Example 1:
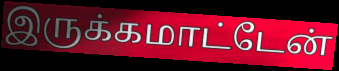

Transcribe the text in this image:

இருக்கமாட்டேன்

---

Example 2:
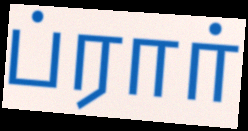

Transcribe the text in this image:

ப்ரார்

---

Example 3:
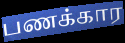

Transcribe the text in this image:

பணக்கார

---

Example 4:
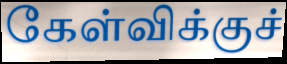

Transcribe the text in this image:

கேள்விக்குச்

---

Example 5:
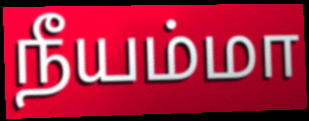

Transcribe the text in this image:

நீயம்மா